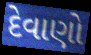
દેવાણો